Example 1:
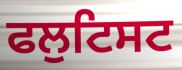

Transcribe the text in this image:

ਫਲੁਟਿਸਟ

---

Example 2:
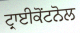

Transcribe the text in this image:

ਟ੍ਰਾਈਕੋਂਟਨੋਲ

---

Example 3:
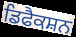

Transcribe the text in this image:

ਡਿਫੈਕਸ਼ਨ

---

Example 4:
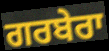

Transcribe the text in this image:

ਗਰਬੇਰਾ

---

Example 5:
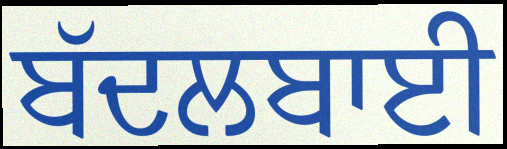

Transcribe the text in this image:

ਬੱਦਲਬਾਈ